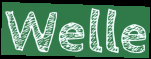
Welle